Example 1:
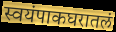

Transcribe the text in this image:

स्वयंपाकघरातलं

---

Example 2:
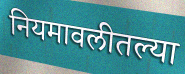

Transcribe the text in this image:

नियमावलीतल्या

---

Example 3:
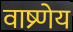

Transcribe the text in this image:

वाष्र्णेय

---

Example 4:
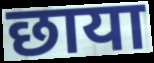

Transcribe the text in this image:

छाया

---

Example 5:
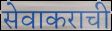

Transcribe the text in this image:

सेवाकराची